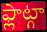
ఫ్లాట్గా